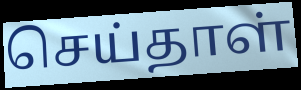
செய்தாள்